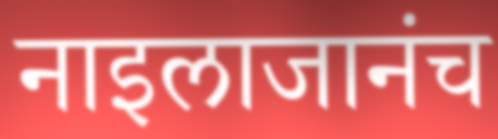
नाइलाजानंच